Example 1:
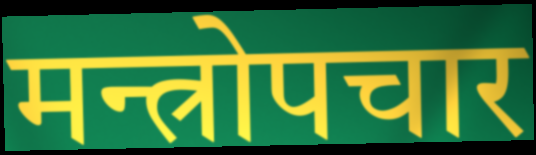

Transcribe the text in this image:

मन्त्रोपचार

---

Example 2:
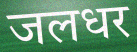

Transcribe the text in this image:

जलधर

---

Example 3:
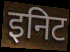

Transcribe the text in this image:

इनिट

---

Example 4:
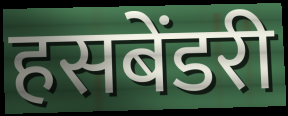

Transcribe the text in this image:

हसबेंडरी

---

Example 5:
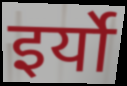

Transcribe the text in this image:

इर्यो